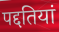
पद्दतियां